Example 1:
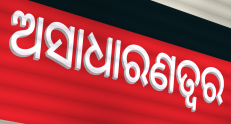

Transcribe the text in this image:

ଅସାଧାରଣତ୍ୱର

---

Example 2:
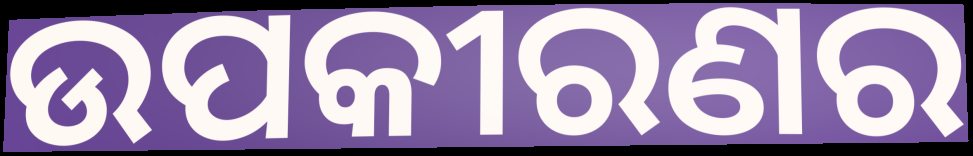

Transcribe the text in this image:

ଉପକୀରଣର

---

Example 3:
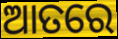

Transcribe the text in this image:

ଆତରେ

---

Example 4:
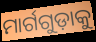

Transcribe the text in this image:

ମାର୍ଗଗୁଡ଼ାକୁ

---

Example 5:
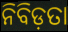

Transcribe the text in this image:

ନିବିଡ଼ତା